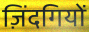
ज़िंदगियों